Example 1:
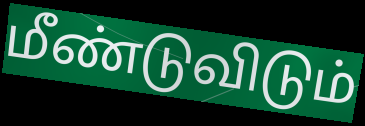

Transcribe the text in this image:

மீண்டுவிடும்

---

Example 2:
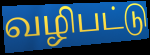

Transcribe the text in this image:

வழிபட்டு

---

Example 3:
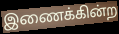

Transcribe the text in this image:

இணைக்கின்ற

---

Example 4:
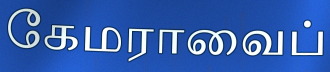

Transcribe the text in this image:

கேமராவைப்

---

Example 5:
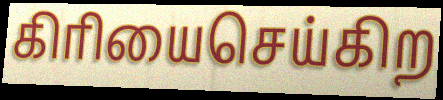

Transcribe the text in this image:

கிரியைசெய்கிற